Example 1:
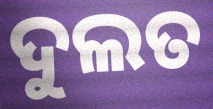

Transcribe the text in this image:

ଦୁଲତ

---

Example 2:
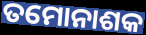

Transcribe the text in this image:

ତମୋନାଶକ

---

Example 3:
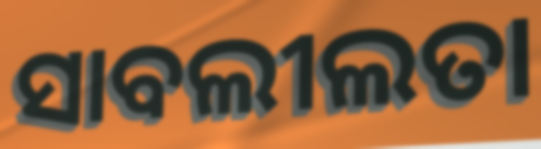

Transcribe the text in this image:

ସାବଲୀଲତା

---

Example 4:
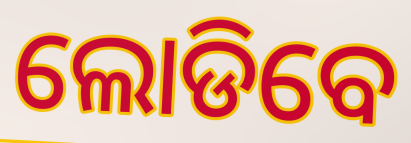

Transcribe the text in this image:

ଲୋଡିବେ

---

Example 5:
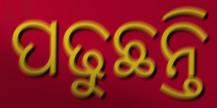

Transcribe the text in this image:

ପଢୁଛନ୍ତି